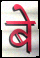
बे